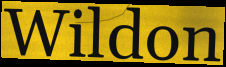
Wildon